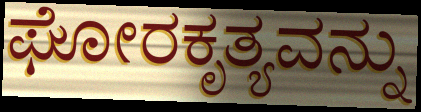
ಘೋರಕೃತ್ಯವನ್ನು